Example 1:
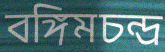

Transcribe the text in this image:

বঙ্গিমচন্দ্র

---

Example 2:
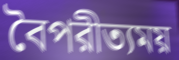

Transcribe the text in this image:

বৈপরীত্যময়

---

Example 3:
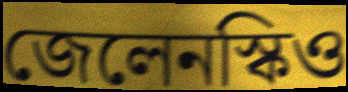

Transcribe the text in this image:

জেলেনস্কিও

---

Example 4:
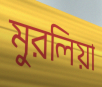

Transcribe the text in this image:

মুরলিয়া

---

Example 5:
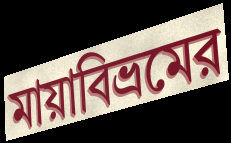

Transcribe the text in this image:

মায়াবিভ্রমের